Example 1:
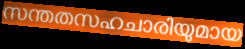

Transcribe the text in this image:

സന്തതസഹചാരിയുമായ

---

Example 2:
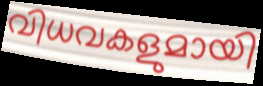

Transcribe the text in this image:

വിധവകളുമായി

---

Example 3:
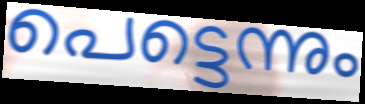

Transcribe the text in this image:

പെട്ടെന്നും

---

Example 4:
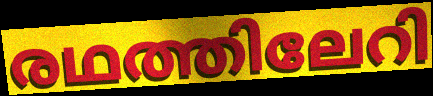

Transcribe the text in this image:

രഥത്തിലേറി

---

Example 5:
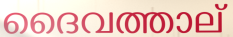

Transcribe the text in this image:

ദൈവത്താല്